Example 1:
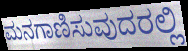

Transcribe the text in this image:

ಮನಗಾಣಿಸುವುದರಲ್ಲಿ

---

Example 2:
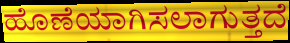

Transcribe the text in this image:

ಹೊಣೆಯಾಗಿಸಲಾಗುತ್ತದೆ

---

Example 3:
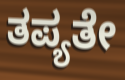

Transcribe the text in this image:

ತಪ್ಯತೇ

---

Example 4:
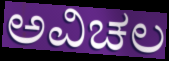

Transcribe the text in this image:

ಅವಿಚಲ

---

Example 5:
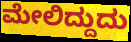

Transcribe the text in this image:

ಮೇಲಿದ್ದುದು